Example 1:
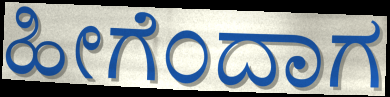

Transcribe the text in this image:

ಹೀಗೆಂದಾಗ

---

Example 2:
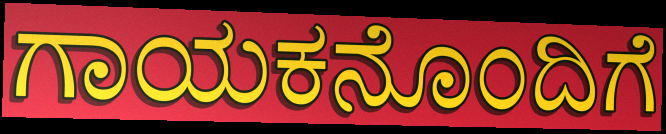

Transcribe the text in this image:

ಗಾಯಕನೊಂದಿಗೆ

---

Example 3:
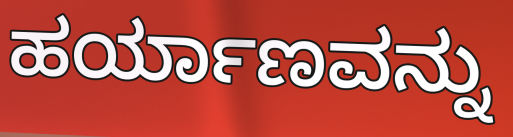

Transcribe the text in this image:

ಹರ್ಯಾಣವನ್ನು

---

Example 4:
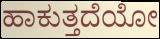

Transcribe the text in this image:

ಹಾಕುತ್ತದೆಯೋ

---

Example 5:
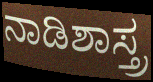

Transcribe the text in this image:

ನಾಡಿಶಾಸ್ತ್ರ